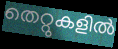
തെറ്റുകളിൽ